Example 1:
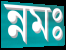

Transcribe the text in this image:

ন্নমঃ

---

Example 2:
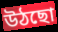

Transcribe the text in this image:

উঠছো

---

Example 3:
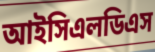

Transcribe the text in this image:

আইসিএলডিএস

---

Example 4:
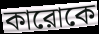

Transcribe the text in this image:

কারোকে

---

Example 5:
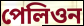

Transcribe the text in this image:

পেলিওন